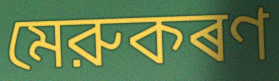
মেৰুকৰণ